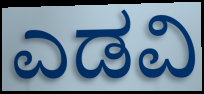
ಎಡವಿ